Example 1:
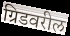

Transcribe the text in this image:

ग्रिडवरील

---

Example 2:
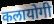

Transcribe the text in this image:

कलायोगी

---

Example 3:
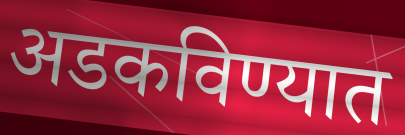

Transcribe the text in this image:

अडकविण्यात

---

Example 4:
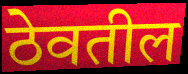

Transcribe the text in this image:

ठेवतील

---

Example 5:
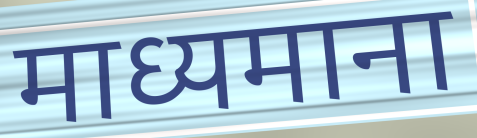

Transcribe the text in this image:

माध्यमाना